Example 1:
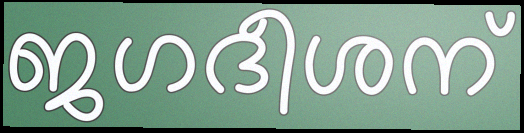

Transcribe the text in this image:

ജഗദീശന്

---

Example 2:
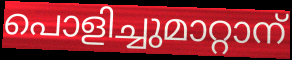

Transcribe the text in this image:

പൊളിച്ചുമാറ്റാന്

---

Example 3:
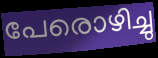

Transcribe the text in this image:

പേരൊഴിച്ചു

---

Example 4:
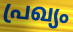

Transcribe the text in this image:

പ്രഖ്യം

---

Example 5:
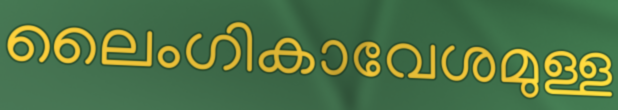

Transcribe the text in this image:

ലൈംഗികാവേശമുള്ള